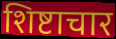
शिष्टाचार